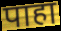
पाहा